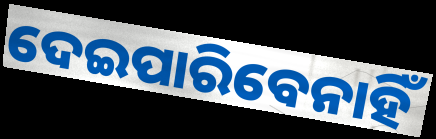
ଦେଇପାରିବେନାହିଁ